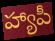
హ్యాపీ